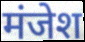
मंजेश